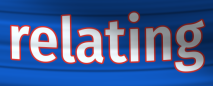
relating